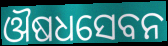
ଔଷଧସେବନ